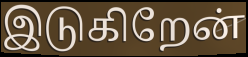
இடுகிறேன்